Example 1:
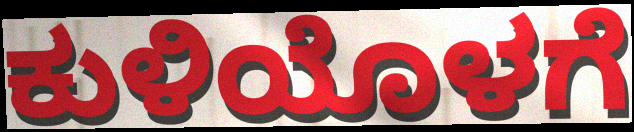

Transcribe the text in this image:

ಕುಳಿಯೊಳಗೆ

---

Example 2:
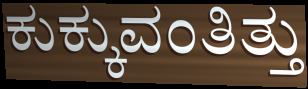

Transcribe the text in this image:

ಕುಕ್ಕುವಂತಿತ್ತು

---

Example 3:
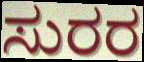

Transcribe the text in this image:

ಸುರರ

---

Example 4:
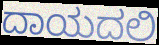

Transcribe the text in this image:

ದಾಯದಲಿ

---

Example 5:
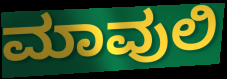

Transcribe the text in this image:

ಮಾವುಲಿ